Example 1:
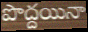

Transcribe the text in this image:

పొద్దయినా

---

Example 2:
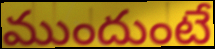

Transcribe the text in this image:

ముందుంటే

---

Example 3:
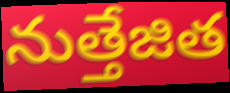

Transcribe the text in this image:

నుత్తేజిత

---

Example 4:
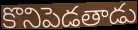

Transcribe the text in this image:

కొనిపెడతాడు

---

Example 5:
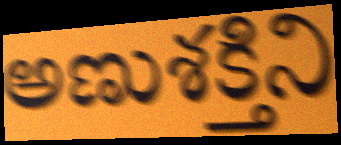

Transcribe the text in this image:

అణుశక్తిని